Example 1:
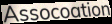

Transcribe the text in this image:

Assocoation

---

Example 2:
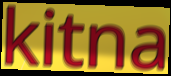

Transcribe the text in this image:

kitna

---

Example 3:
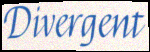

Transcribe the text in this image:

Divergent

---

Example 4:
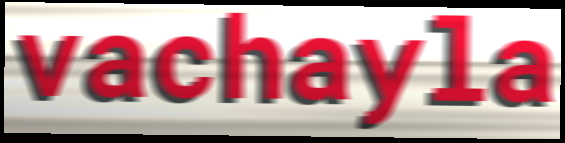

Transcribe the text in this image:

vachayla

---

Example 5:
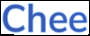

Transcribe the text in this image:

Chee